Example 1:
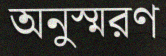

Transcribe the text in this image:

অনুস্মরণ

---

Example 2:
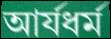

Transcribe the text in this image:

আর্যধর্ম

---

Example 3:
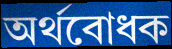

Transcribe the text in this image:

অর্থবোধক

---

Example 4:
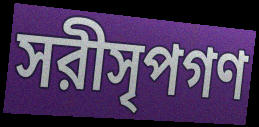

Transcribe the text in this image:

সরীসৃপগণ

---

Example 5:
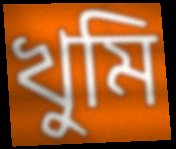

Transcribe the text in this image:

খুমি